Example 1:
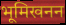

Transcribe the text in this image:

भूमिखनन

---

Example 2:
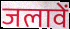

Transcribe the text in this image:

जलावें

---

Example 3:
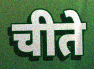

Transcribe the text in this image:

चीते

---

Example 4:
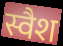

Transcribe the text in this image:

स्वैश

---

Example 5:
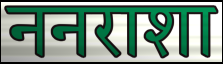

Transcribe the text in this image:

ननराशा